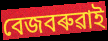
বেজবৰুৱাই